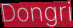
Dongri